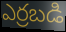
ఎర్రబడి